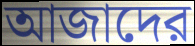
আজাদের